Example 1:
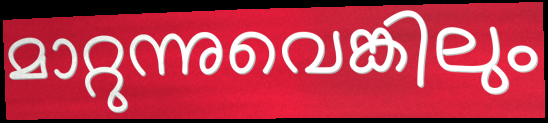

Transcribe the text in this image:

മാറ്റുന്നുവെങ്കിലും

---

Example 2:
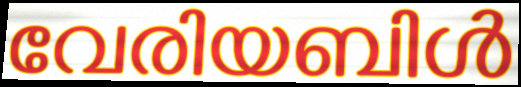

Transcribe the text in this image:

വേരിയബിൾ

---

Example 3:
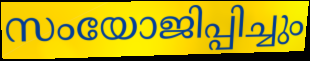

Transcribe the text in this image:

സംയോജിപ്പിച്ചും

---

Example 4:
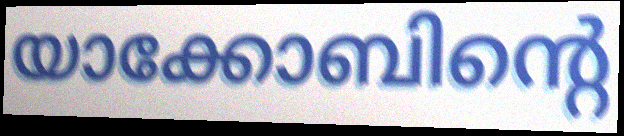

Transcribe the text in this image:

യാക്കോബിന്റെ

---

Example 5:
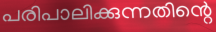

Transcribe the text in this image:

പരിപാലിക്കുന്നതിന്റെ